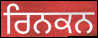
ਰਿਨਕਨ